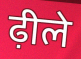
ढ़ीले